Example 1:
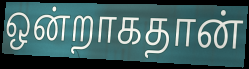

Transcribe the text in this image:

ஒன்றாகதான்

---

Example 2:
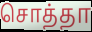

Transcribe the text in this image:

சொத்தா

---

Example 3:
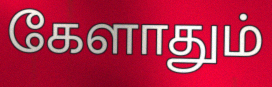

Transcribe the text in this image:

கேளாதும்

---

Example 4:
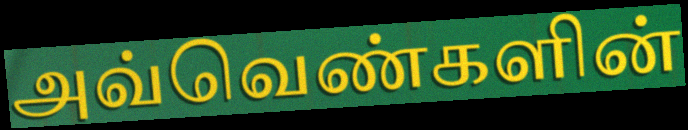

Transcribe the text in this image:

அவ்வெண்களின்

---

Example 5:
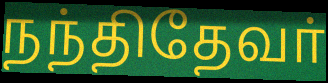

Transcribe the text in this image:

நந்திதேவர்